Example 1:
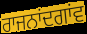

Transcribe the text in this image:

ਰਾਜਨਾਂਦਗਾਂਵ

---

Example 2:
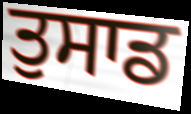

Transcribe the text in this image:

ਤੁਸਾਡ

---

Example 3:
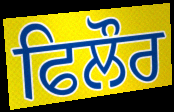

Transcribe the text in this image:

ਫਿਲੌਰ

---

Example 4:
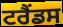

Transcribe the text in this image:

ਟਰੈਂਡਸ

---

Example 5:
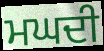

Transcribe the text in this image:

ਮਘਦੀ